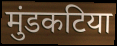
मुंडकटिया